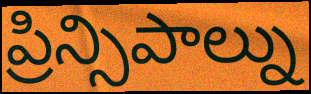
ప్రిన్సిపాల్ను